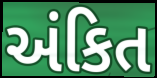
અંકિત